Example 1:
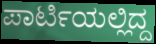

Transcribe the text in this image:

ಪಾರ್ಟಿಯಲ್ಲಿದ್ದ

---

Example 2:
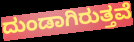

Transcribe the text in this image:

ದುಂಡಾಗಿರುತ್ತವೆ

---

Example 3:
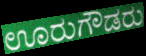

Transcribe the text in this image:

ಊರುಗೌಡರು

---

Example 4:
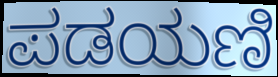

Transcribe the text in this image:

ಪಡಯಣಿ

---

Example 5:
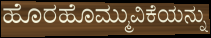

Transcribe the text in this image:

ಹೊರಹೊಮ್ಮುವಿಕೆಯನ್ನು